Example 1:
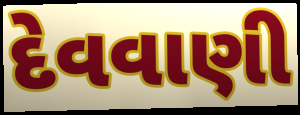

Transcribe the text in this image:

દેવવાણી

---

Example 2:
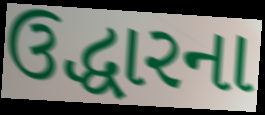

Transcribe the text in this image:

ઉદ્ધારના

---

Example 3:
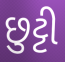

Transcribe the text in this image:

છુટ્ટી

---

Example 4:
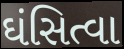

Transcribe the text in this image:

ઘંસિત્વા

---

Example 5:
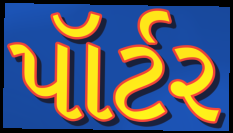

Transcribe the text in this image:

પૉર્ટર